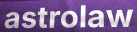
astrolaw